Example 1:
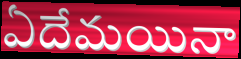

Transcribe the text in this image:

ఏదేమయినా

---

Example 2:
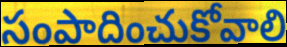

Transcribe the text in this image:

సంపాదించుకోవాలి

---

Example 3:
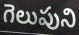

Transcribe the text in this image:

గెలుపుని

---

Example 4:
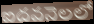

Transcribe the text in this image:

ఐదవనెలలో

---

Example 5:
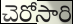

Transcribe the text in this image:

చెరోసారి